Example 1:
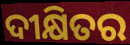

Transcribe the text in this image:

ଦୀକ୍ଷିତର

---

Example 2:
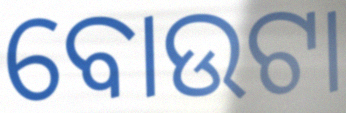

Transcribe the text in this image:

ବୋଉଟା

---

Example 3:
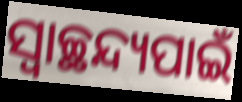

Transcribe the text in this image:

ସ୍ୱାଚ୍ଛନ୍ଦ୍ୟପାଇଁ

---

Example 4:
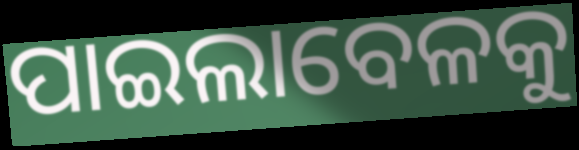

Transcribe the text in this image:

ପାଇଲାବେଳକୁ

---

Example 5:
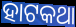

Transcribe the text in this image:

ହାଟକଥା